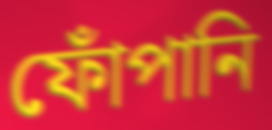
ফোঁপানি